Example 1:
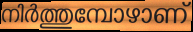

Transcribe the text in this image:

നിർത്തുമ്പോഴാണ്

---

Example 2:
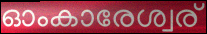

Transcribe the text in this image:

ഓംകാരേശ്വര്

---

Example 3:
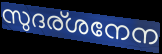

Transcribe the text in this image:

സുദര്ശനേന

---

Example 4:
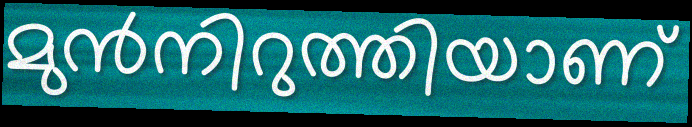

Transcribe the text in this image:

മുൻനിറുത്തിയാണ്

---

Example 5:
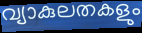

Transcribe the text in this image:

വ്യാകുലതകളും